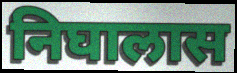
निघालास